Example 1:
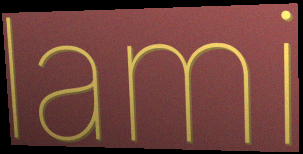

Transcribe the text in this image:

lami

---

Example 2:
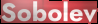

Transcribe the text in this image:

Sobolev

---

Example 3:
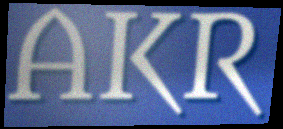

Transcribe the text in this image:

AKR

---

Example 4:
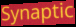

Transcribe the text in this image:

Synaptic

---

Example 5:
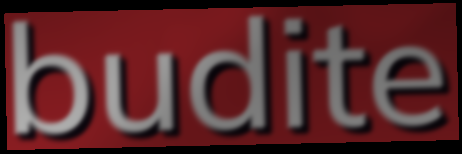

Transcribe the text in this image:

budite